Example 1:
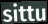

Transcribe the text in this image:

sittu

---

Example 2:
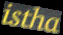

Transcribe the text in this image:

istha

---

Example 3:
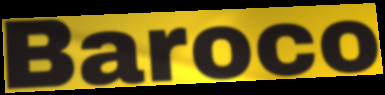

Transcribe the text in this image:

Baroco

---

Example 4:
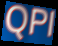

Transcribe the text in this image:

QPI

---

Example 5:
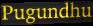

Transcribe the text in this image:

Pugundhu